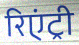
रिएंट्री